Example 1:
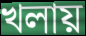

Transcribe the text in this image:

খলায়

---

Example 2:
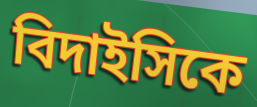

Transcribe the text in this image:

বিদাইসিকে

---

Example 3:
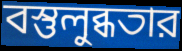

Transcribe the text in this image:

বস্তুলুব্ধতার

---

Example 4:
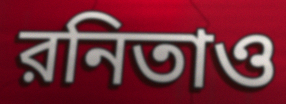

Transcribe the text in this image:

রনিতাও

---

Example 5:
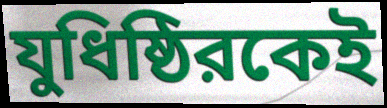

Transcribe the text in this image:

যুধিষ্ঠিরকেই